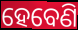
ହେବେଣି